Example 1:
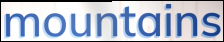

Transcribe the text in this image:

mountains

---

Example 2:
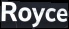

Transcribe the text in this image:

Royce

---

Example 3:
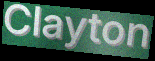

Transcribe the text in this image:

Clayton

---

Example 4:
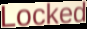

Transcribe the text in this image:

Locked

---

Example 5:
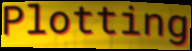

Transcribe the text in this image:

Plotting